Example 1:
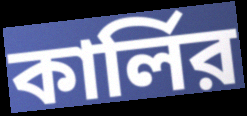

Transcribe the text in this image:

কার্লির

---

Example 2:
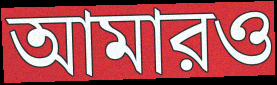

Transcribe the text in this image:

আমারও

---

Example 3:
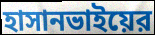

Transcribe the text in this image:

হাসানভাইয়ের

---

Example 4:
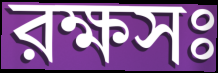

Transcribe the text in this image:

রক্ষসঃ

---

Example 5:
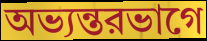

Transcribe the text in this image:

অভ্যন্তরভাগে